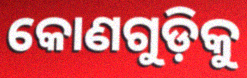
କୋଣଗୁଡ଼ିକୁ